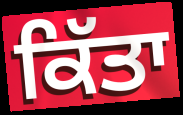
ਕਿੱਤਾ